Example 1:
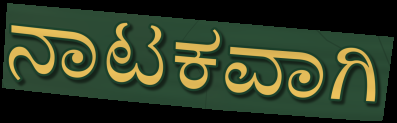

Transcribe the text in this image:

ನಾಟಕವಾಗಿ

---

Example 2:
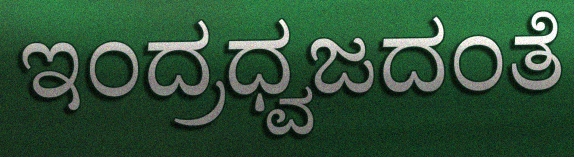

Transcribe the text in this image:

ಇಂದ್ರಧ್ವಜದಂತೆ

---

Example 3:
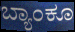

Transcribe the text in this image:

ಬ್ಯಾಂಕೂ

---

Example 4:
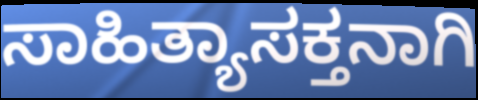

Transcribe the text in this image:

ಸಾಹಿತ್ಯಾಸಕ್ತನಾಗಿ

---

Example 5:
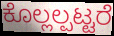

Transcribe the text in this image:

ಕೊಲ್ಲಲ್ಪಟ್ಟರೆ